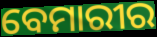
ବେମାରୀର